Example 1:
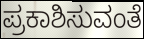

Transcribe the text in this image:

ಪ್ರಕಾಶಿಸುವಂತೆ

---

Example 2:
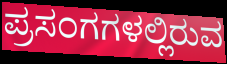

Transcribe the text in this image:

ಪ್ರಸಂಗಗಳಲ್ಲಿರುವ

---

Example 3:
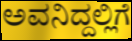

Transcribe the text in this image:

ಅವನಿದ್ದಲ್ಲಿಗೆ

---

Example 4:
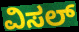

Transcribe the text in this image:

ವಿಸಲ್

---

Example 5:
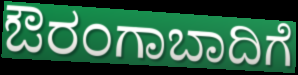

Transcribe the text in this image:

ಔರಂಗಾಬಾದಿಗೆ